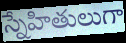
స్నేహితులుగా